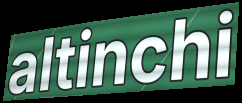
altinchi